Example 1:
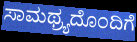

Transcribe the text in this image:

ಸಾಮಥ್ರ್ಯದೊಂದಿಗೆ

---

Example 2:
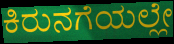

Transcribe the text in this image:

ಕಿರುನಗೆಯಲ್ಲೇ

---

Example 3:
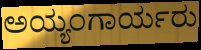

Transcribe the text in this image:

ಅಯ್ಯಂಗಾರ್ಯರು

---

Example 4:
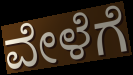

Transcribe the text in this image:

ವೇಳೆಗೆ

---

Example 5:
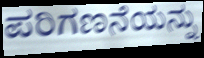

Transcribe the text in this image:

ಪರಿಗಣನೆಯನ್ನು